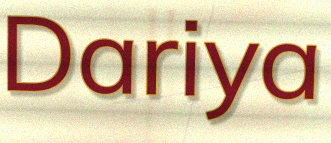
Dariya